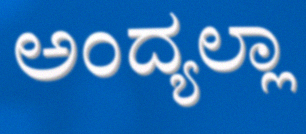
ಅಂದ್ಯಲ್ಲಾ